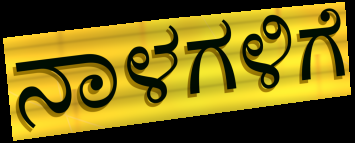
ನಾಳಗಳಿಗೆ